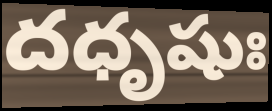
దధృషుః